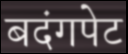
बदंगपेट